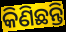
କିଣିଛନ୍ତି